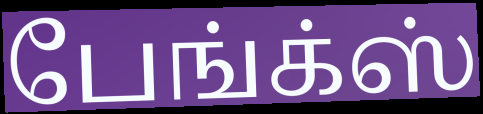
பேங்க்ஸ்